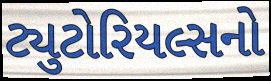
ટ્યુટોરિયલ્સનો